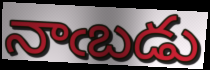
నాఁబడు